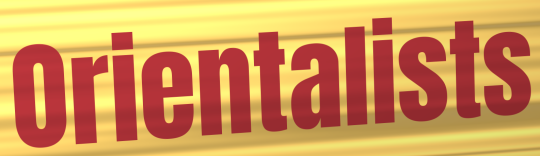
Orientalists